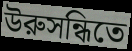
উরুসন্ধিতে